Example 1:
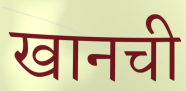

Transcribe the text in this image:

खानची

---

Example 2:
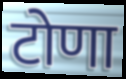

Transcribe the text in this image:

टोणा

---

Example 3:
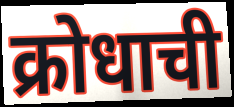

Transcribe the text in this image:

क्रोधाची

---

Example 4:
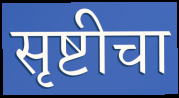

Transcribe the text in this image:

सृष्टीचा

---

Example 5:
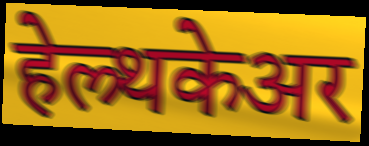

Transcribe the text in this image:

हेल्थकेअर